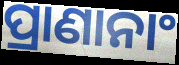
ପ୍ରାଣାନାଂ